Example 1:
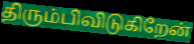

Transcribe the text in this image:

திரும்பிவிடுகிறேன்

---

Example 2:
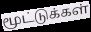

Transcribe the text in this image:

மூட்டுக்கள்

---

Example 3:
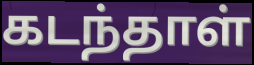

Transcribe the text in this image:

கடந்தாள்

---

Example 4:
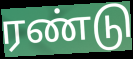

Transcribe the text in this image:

ரண்டு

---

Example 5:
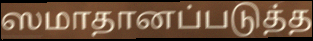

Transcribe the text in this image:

ஸமாதானப்படுத்த